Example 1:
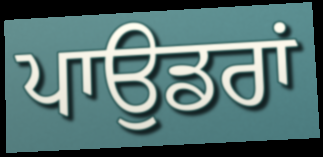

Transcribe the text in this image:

ਪਾਉਡਰਾਂ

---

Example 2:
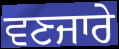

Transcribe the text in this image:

ਵਣਜਾਰੇ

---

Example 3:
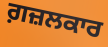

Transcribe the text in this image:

ਗ਼ਜ਼ਲਕਾਰ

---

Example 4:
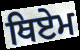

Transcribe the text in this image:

ਥਿਏਮ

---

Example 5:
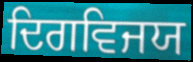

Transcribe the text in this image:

ਦਿਗਵਿਜਯ